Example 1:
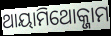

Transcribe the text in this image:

ଥାୟାମିଥୋକ୍ଜାମ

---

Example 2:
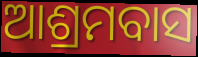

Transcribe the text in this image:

ଆଶ୍ରମବାସ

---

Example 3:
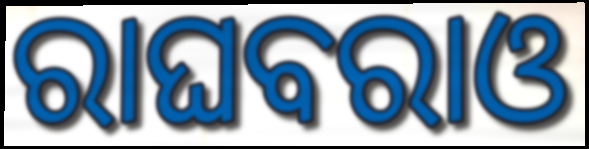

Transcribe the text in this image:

ରାଘବରାଓ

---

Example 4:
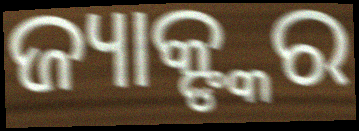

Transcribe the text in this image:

ଜ୍ୟାକ୍ଙ୍କର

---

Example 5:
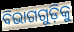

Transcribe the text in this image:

ବିଭାଗଗୁଡ଼ିକୁ